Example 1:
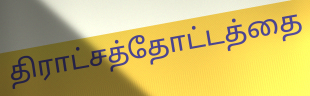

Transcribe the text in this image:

திராட்சத்தோட்டத்தை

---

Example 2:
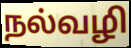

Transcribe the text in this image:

நல்வழி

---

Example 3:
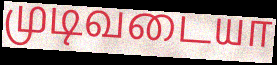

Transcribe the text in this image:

முடிவடையா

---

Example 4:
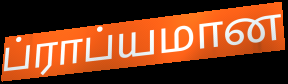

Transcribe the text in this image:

ப்ராப்யமான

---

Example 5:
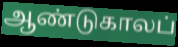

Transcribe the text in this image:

ஆண்டுகாலப்